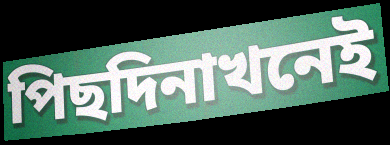
পিছদিনাখনেই